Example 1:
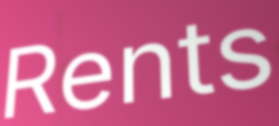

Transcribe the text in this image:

Rents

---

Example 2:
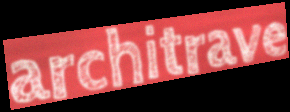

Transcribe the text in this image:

architrave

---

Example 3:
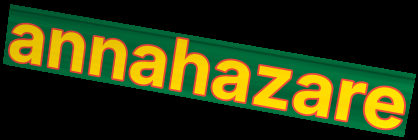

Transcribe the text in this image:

annahazare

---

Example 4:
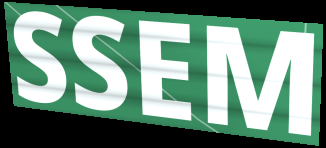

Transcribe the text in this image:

SSEM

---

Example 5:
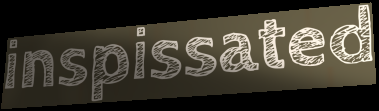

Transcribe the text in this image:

inspissated